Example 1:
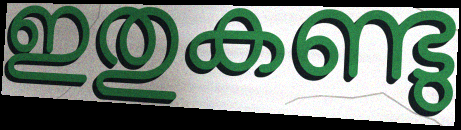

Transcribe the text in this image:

ഇതുകണ്ടു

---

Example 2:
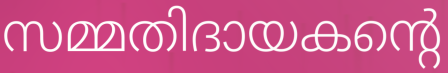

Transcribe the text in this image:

സമ്മതിദായകന്റെ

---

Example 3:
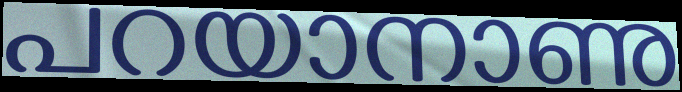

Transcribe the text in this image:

പറയാനാണു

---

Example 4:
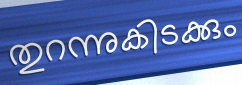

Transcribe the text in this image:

തുറന്നുകിടക്കും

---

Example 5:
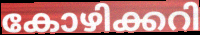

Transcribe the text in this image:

കോഴിക്കറി